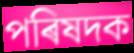
পৰিষদক